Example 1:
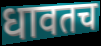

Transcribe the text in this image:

धावतच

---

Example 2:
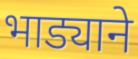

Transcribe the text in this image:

भाड्याने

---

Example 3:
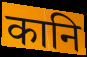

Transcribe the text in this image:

कानि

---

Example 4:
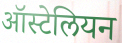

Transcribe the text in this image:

ऑस्टेलियन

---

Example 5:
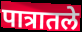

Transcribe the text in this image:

पात्रातले